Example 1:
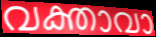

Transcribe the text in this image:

വക്താവാ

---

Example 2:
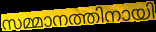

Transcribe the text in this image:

സമ്മാനത്തിനായി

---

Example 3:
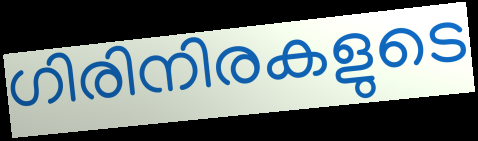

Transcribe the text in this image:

ഗിരിനിരകളുടെ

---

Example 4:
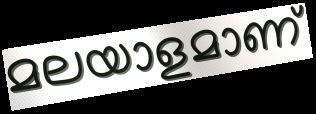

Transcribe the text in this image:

മലയാളമാണ്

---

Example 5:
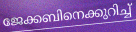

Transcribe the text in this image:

ജേക്കബിനെക്കുറിച്ച്